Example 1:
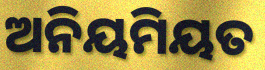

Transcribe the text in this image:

ଅନିୟମିୟତ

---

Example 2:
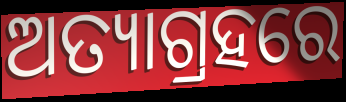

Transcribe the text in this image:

ଅତ୍ୟାଗ୍ରହରେ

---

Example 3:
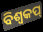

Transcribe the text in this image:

ବିଶ୍ବକପ୍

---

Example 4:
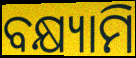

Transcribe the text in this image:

ବକ୍ଷ୍ୟାମି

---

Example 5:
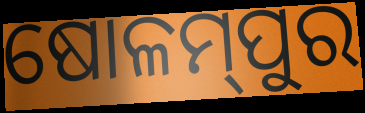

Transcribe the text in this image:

ଷୋଳମ୍‌ପୁର